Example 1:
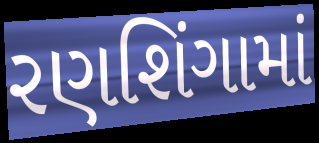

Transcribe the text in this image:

રણશિંગામાં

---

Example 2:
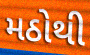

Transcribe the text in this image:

મઠોથી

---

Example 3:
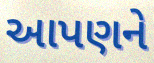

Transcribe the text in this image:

આપણને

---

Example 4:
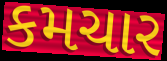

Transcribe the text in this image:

કમચાર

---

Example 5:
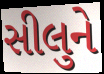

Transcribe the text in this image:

સીલુને